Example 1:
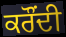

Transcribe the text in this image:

ਕਰੌਂਦੀ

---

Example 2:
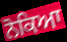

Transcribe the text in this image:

ਨੋਕਿਆ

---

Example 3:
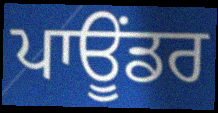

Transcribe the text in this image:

ਪਾਊਂਡਰ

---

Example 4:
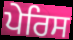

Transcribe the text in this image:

ਪੇਰਿਸ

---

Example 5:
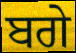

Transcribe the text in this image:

ਬਗੇ